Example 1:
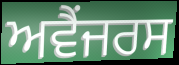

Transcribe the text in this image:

ਅਵੈਂਜਰਸ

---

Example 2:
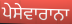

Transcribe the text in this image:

ਪੇਸੇਵਾਰਾਨਾ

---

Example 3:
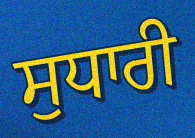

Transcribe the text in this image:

ਸੁਧਾਰੀ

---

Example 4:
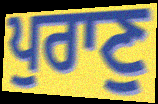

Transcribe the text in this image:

ਪੁਰਾਣੁ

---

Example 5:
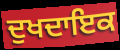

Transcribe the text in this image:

ਦੁਖਦਾਇਕ